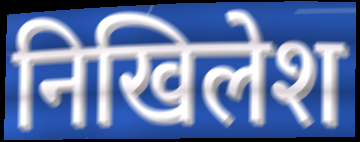
निखिलेश